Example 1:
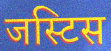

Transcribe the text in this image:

जस्टिस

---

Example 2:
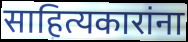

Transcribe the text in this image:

साहित्यकारांना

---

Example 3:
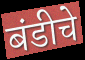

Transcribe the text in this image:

बंडीचे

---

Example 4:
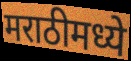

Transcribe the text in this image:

मराठीमध्ये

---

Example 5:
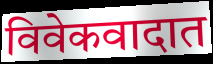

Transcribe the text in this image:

विवेकवादात